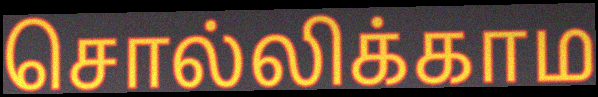
சொல்லிக்காம